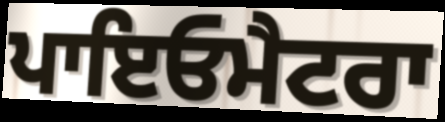
ਪਾਇਓਮੈਟਰਾ